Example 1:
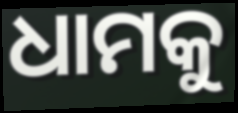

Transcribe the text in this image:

ଧାମକୁ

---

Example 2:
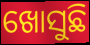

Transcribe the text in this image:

ଖୋସୁଛି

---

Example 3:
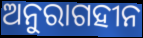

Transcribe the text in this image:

ଅନୁରାଗହୀନ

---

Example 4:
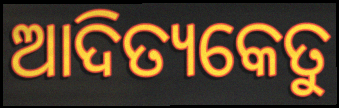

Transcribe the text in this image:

ଆଦିତ୍ୟକେତୁ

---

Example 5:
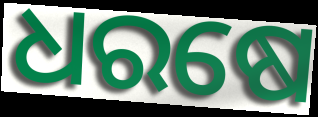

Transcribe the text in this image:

ଧରଷେ